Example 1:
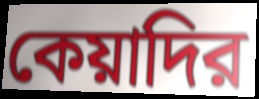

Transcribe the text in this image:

কেয়াদির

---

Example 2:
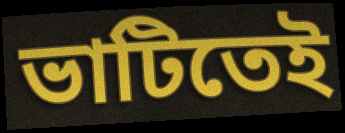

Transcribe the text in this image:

ভাটিতেই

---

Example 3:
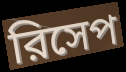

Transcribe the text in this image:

রিসেপ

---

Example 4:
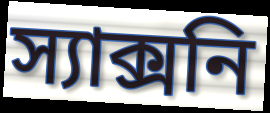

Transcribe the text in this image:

স্যাক্সনি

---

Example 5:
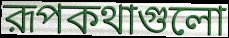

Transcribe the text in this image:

রূপকথাগুলো